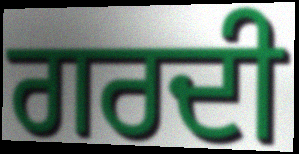
ਗਰਦੀ